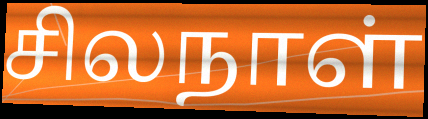
சிலநாள்